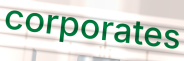
corporates